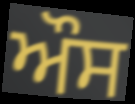
ਔਸ